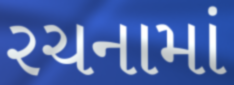
રચનામાં